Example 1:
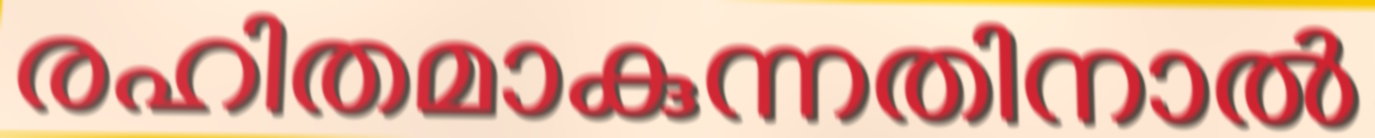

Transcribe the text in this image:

രഹിതമാകുന്നതിനാൽ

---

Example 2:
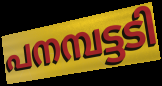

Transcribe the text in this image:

പനമ്പട്ടടി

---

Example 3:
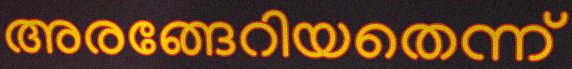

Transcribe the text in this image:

അരങ്ങേറിയതെന്ന്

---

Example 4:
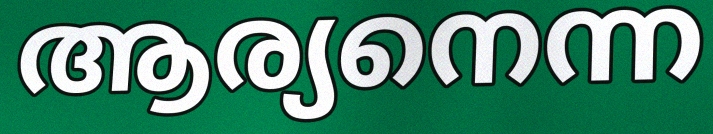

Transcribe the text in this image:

ആര്യനെന്ന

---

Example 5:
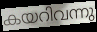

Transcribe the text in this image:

കയറിവന്നു